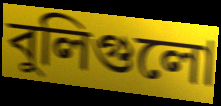
বুলিগুলো